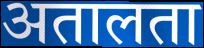
अतालता